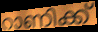
റാണിക്ക്